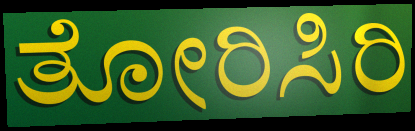
ತೋರಿಸಿರಿ